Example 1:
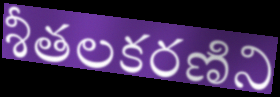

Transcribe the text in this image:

శీతలకరణిని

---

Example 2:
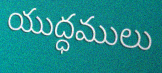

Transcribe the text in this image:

యుద్ధములు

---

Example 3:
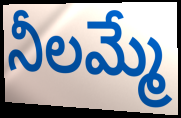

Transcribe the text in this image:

నీలమ్మే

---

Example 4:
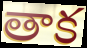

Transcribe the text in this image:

తాక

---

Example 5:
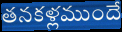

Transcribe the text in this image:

తనకళ్లముందే